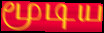
மூடிய